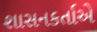
શાસનકર્તાએ